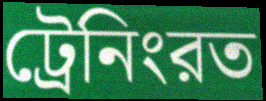
ট্রেনিংরত